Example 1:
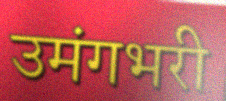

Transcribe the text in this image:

उमंगभरी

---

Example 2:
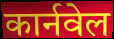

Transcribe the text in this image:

कार्नवेल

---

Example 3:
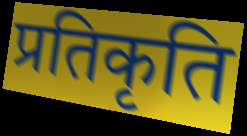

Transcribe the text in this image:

प्रतिकृति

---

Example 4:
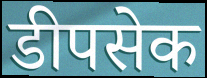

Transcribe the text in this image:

डीपसेक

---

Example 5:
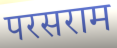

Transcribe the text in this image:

परसराम